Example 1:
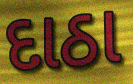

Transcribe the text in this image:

દાઠા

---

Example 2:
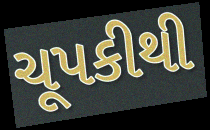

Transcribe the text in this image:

ચૂપકીથી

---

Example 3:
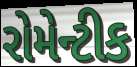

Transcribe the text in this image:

રોમેન્ટીક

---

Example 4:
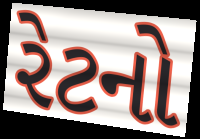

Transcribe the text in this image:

રેટનો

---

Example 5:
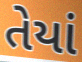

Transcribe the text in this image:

તેયાં